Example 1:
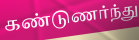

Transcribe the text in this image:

கண்டுணர்ந்து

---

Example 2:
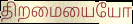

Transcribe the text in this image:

திறமையையோ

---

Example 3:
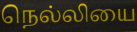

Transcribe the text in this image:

நெல்லியை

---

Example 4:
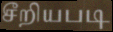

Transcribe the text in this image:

சீறியபடி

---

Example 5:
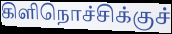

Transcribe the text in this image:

கிளிநொச்சிக்குச்